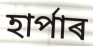
হাৰ্পাৰ